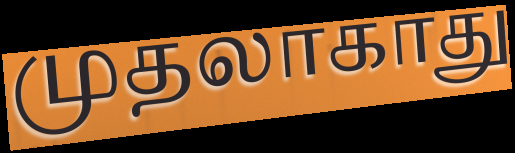
முதலாகாது